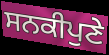
ਸਨਕੀਪੁਣੇ